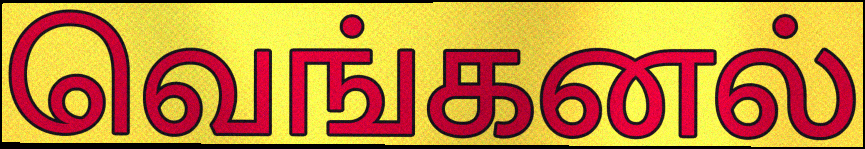
வெங்கனல்